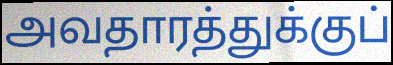
அவதாரத்துக்குப்